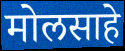
मोलसाहे